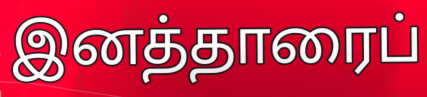
இனத்தாரைப்